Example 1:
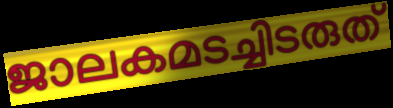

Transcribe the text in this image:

ജാലകമടച്ചിടരുത്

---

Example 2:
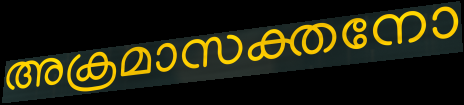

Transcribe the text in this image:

അക്രമാസക്തനോ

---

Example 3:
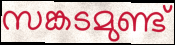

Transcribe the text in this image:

സങ്കടമുണ്ട്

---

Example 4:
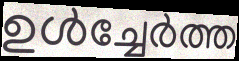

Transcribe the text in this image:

ഉൾച്ചേർത്ത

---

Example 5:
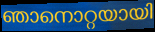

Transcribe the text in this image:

ഞാനൊറ്റയായി